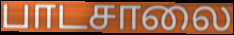
பாடசாலை